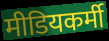
मीडियकर्मी